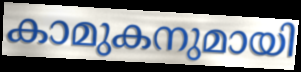
കാമുകനുമായി